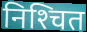
निश्चित